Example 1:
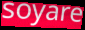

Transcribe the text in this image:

soyare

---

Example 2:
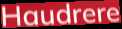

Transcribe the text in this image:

Haudrere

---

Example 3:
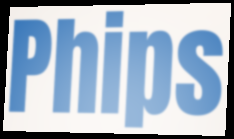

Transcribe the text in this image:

Phips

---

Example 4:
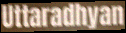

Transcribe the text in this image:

Uttaradhyan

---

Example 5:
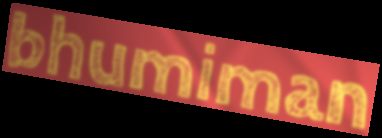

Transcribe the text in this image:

bhumiman